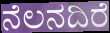
ನೆಲನದಿರೆ